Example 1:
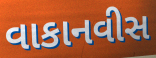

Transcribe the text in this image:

વાકાનવીસ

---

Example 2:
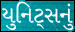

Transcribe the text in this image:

યુનિટ્સનું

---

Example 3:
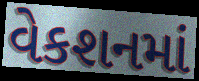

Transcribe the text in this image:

વેકશનમાં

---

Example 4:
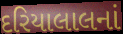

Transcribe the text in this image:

દરિયાલાલનાં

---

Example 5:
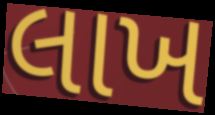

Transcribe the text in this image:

લાખ